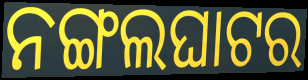
ନଙ୍ଗଲଘାଟର